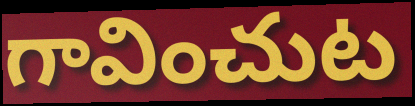
గావించుట